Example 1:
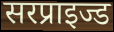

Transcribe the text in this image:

सरप्राइज्ड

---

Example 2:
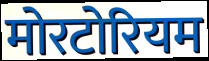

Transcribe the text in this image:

मोरटोरियम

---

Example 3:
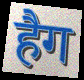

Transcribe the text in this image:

हैग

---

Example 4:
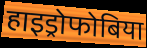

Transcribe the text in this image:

हाइड्रोफोबिया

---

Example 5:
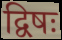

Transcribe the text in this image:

द्विषः